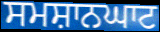
ਸਮਸ਼ਾਨਘਾਟ